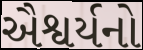
ઐશ્વર્યનો